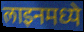
लाइनमध्ये